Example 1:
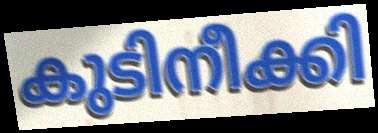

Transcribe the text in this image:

കുടിനീക്കി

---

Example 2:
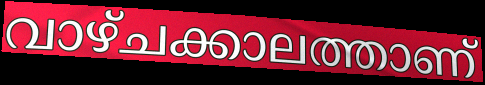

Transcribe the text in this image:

വാഴ്ചക്കാലത്താണ്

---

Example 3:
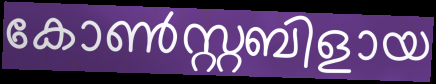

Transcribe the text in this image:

കോൺസ്റ്റബിളായ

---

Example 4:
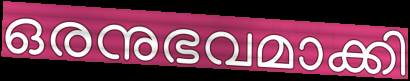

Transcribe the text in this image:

ഒരനുഭവമാക്കി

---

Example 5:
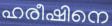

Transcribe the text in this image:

ഹരീഷിനെ